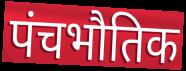
पंचभौतिक